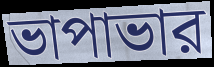
ভাপাভার